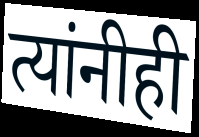
त्यांनीही